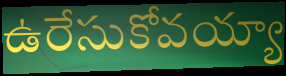
ఉరేసుకోవయ్యా